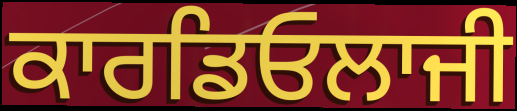
ਕਾਰਡਿਓਲਾਜੀ